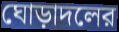
ঘোড়াদলের